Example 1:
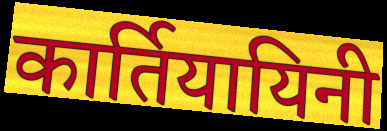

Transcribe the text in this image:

कार्तियायिनी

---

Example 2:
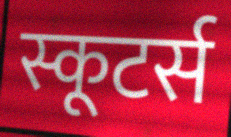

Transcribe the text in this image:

स्‍कूटर्स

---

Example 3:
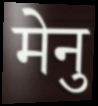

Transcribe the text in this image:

मेनु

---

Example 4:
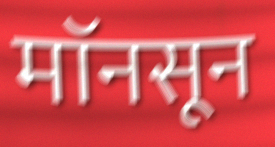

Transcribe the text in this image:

मॉनसून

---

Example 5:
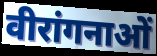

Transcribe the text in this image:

वीरांगनाओं